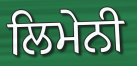
ਲਿਮੇਨੀ